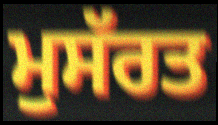
ਮੁਸੱਰਤ